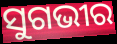
ସୁଗଭୀର